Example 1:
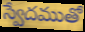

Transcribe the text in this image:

స్వేదముతో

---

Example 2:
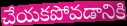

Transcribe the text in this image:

చేయకపోవడానికి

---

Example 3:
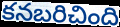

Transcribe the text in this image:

కనబరిచింది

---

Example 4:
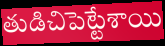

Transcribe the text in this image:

తుడిచిపెట్టేశాయి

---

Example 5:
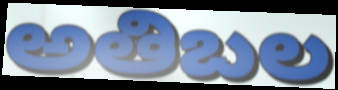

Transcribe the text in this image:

అతిబల